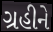
ગ્રહીને